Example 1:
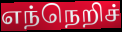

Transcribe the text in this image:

எந்நெறிச்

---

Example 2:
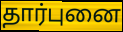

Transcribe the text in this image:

தார்புனை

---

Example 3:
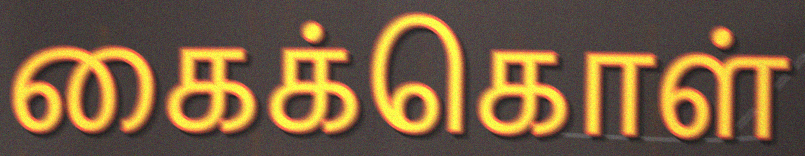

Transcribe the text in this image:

கைக்கொள்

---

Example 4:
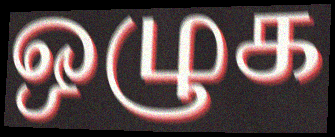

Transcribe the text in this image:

ஒழுக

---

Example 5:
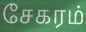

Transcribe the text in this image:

சேகரம்